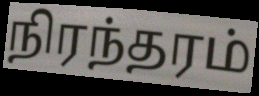
நிரந்தரம்